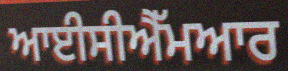
ਆਈਸੀਐੱਮਆਰ